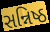
સન્નિષ્ઠ